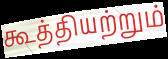
கூத்தியற்றும்